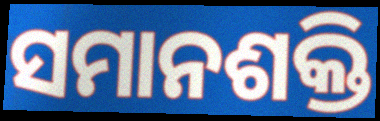
ସମାନଶକ୍ତି